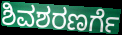
ಶಿವಶರಣರ್ಗೆ